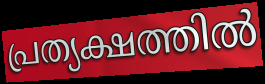
പ്രത്യക്ഷത്തിൽ